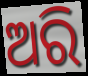
ଅରି